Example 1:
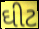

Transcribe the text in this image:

ઘીટ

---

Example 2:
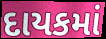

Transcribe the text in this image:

દાયકમાં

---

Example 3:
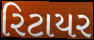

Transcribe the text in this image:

રિટાયર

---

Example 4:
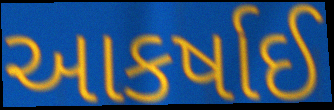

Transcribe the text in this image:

આકર્ષાઈ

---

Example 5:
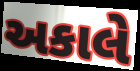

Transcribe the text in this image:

અકાલે